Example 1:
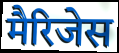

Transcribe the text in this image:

मैरिजेस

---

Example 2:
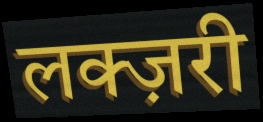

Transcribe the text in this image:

लक्ज़री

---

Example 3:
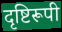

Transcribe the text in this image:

दृष्टिरूपी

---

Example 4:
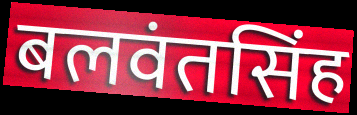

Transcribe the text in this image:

बलवंतसिंह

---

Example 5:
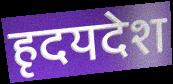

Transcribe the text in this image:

हृदयदेश